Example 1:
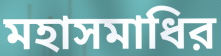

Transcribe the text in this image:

মহাসমাধির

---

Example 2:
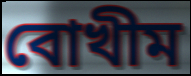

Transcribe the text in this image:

বোখীম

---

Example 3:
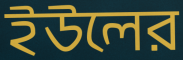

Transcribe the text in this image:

ইউলের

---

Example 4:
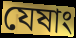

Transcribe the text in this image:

যেষাং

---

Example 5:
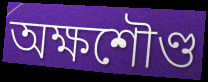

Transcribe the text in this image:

অক্ষশৌণ্ড